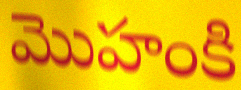
మొహంకి